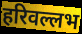
हरिवल्लभ